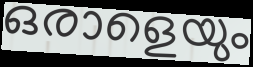
ഒരാളെയും